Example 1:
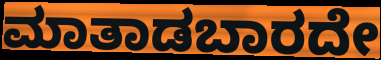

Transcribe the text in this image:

ಮಾತಾಡಬಾರದೇ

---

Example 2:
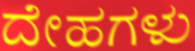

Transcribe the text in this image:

ದೇಹಗಳು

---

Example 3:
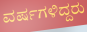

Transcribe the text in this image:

ವರ್ಷಗಳಿದ್ದರು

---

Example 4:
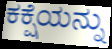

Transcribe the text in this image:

ಕಕ್ಷೆಯನ್ನು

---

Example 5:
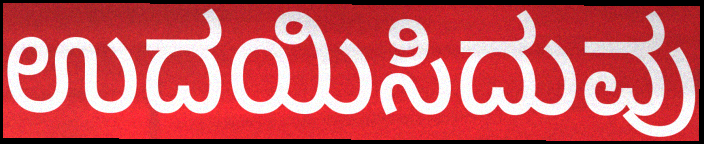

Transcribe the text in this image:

ಉದಯಿಸಿದುವು